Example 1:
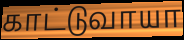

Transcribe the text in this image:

காட்டுவாயா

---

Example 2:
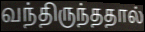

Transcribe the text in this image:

வந்திருந்ததால்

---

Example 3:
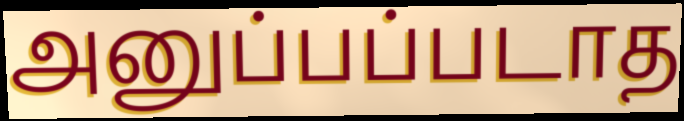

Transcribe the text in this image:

அனுப்பப்படாத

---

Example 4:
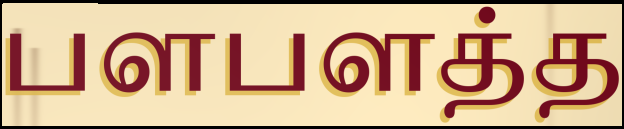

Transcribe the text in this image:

பளபளத்த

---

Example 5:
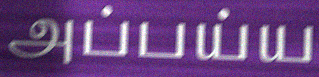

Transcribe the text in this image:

அப்பய்ய